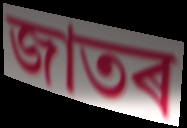
জাতৰ